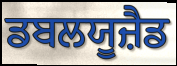
ਡਬਲਯੂਜ਼ੈਡ